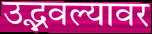
उद्भवल्यावर